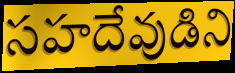
సహదేవుడిని